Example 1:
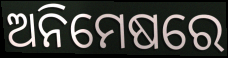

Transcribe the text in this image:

ଅନିମେଷରେ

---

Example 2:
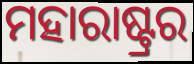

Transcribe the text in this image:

ମହାରାଷ୍ଟ୍ରର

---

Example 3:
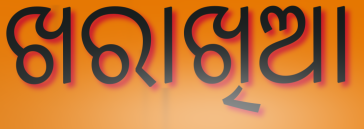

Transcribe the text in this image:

ଖରାଖିଆ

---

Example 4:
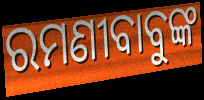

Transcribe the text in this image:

ରମଣୀବାବୁଙ୍କ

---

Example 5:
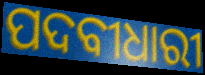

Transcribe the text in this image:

ପଦବୀଧାରୀ